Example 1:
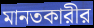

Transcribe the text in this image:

মানতকারীর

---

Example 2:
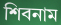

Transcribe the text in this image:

শিবনাম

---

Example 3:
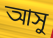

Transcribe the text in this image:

আসু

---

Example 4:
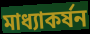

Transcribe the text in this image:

মাধ্যাকর্ষন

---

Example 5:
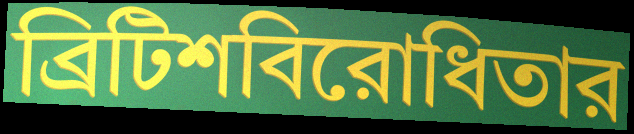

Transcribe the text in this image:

ব্রিটিশবিরোধিতার